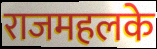
राजमहलके